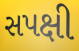
સપક્ષી